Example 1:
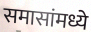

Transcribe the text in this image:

समासांमध्ये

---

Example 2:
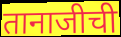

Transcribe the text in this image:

तानाजीची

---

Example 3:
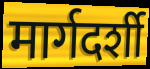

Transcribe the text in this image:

मार्गदर्शी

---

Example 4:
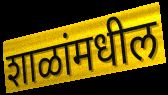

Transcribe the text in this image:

शाळांमधील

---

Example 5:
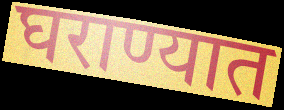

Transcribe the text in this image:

घराण्यात